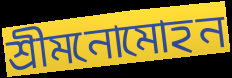
শ্রীমনোমোহন